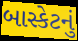
બાસ્કેટનું